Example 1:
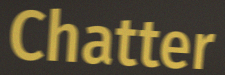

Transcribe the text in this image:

Chatter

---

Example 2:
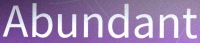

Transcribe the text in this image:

Abundant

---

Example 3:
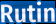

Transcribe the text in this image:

Rutin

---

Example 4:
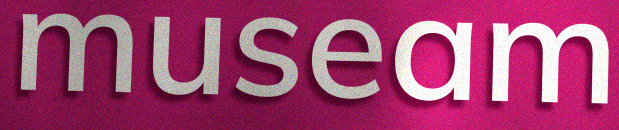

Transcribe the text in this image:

museam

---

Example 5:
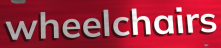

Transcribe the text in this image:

wheelchairs